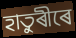
হাতুৰীৰে